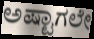
ಅಷ್ಟಾಗಲೇ